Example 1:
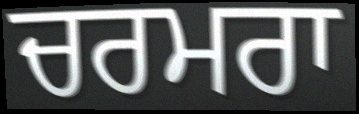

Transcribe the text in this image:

ਚਰਮਰਾ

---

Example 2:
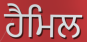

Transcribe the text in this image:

ਹੈਮਿਲ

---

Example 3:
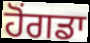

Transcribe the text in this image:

ਹੋਂਗਡਾ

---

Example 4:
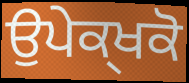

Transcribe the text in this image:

ਉਪੇਕ੍ਖਕੋ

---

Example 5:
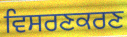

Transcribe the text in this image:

ਵਿਸਰਣਕਰਣ